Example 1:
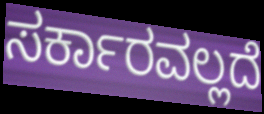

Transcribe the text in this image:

ಸರ್ಕಾರವಲ್ಲದೆ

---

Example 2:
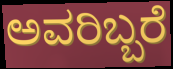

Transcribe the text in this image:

ಅವರಿಬ್ಬರೆ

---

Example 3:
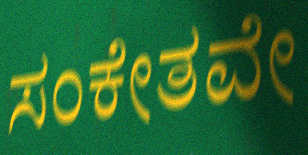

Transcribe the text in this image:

ಸಂಕೇತವೇ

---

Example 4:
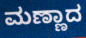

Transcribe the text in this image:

ಮಣ್ಣಾದ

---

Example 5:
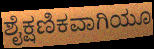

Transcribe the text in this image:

ಶೈಕ್ಷಣಿಕವಾಗಿಯೂ